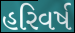
હરિવર્ષ